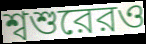
শ্বশুরেরও